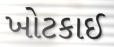
ખોટકાઈ